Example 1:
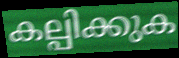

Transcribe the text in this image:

കല്പിക്കുക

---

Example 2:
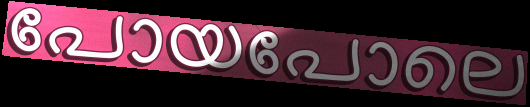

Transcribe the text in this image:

പോയപോലെ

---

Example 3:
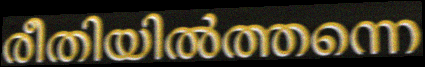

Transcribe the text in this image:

രീതിയിൽത്തന്നെ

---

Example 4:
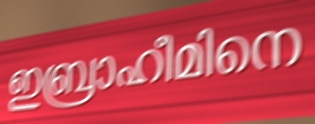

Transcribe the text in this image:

ഇബ്രാഹീമിനെ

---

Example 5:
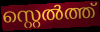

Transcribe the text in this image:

സ്റ്റെൽത്ത്